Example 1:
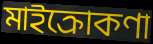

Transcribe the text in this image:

মাইক্রোকণা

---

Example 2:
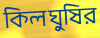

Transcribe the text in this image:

কিলঘুষির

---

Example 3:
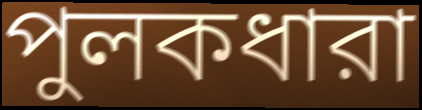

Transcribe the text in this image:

পুলকধারা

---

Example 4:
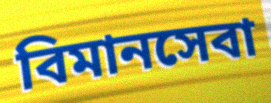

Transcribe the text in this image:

বিমানসেবা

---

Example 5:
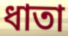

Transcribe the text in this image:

ধাতা